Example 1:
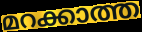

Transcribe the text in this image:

മറക്കാത്ത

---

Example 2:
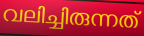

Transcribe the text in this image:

വലിച്ചിരുന്നത്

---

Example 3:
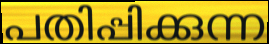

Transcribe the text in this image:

പതിപ്പിക്കുന്ന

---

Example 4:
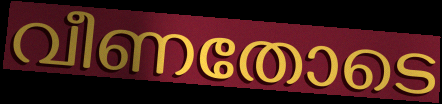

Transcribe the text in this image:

വീണതോടെ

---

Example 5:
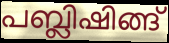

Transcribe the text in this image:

പബ്ലിഷിങ്ങ്